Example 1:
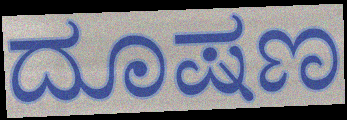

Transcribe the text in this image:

ದೂಷಣ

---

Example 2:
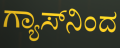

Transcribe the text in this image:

ಗ್ಯಾಸ್‌ನಿಂದ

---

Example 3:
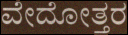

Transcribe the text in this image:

ವೇದೋತ್ತರ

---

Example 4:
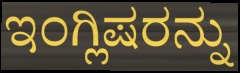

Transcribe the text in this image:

ಇಂಗ್ಲಿಷರನ್ನು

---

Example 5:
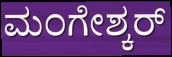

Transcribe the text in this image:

ಮಂಗೇಶ್ಕರ್